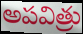
అపవిత్రు